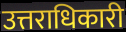
उत्तराधिकारी